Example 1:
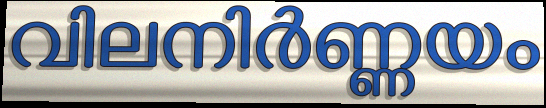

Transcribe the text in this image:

വിലനിർണ്ണയം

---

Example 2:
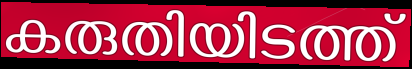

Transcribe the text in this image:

കരുതിയിടത്ത്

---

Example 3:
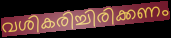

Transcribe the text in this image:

വശികരിച്ചിരിക്കണം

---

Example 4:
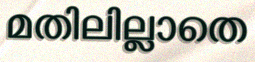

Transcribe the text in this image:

മതിലില്ലാതെ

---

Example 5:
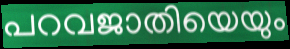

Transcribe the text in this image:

പറവജാതിയെയും